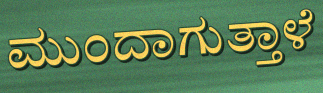
ಮುಂದಾಗುತ್ತಾಳೆ